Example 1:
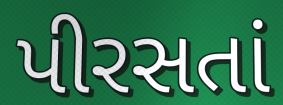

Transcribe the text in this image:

પીરસતાં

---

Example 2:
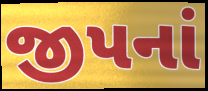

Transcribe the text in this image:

જીપનાં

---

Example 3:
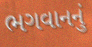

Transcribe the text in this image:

ભગવાનનું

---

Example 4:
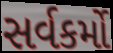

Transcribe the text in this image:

સર્વકર્મો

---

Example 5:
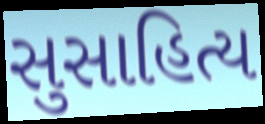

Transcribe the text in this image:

સુસાહિત્ય